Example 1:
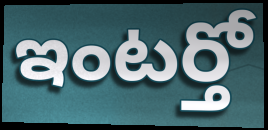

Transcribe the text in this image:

ఇంటర్తో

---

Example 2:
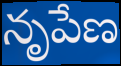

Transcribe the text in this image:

నృపేణ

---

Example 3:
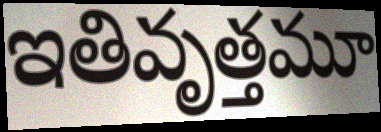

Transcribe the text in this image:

ఇతివృత్తమూ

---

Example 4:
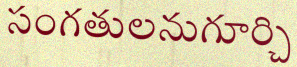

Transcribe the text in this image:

సంగతులనుగూర్చి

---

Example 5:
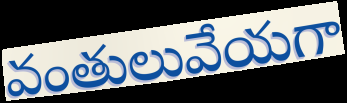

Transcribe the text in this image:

వంతులువేయగా